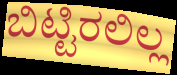
ಬಿಟ್ಟಿರಲಿಲ್ಲ